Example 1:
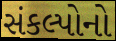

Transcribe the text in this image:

સંકલ્પોનો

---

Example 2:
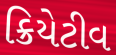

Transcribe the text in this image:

ક્રિયેટીવ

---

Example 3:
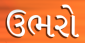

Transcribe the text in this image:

ઉભરો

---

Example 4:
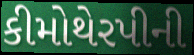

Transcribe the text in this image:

કીમોથેરપીની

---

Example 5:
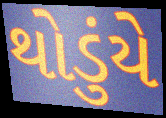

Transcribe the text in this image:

થોડુંયે